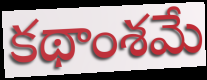
కథాంశమే